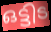
ഒട്ടിട